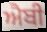
ਐਬੀ